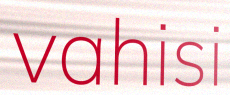
vahisi